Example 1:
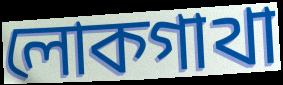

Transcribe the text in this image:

লোকগাথা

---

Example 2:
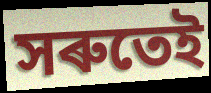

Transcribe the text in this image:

সৰুতেই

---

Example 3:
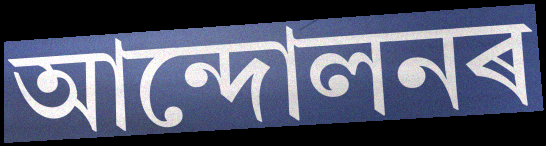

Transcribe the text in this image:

আন্দোলনৰ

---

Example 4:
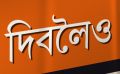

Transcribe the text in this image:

দিবলৈও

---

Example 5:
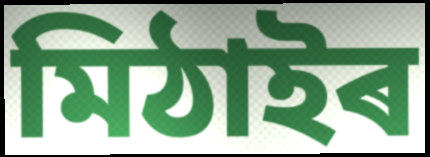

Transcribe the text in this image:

মিঠাইৰ